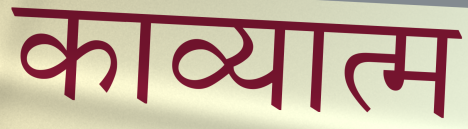
काव्यात्म